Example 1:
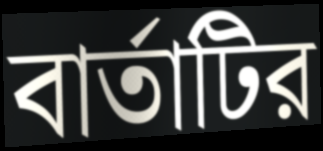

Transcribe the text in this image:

বার্তাটির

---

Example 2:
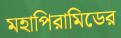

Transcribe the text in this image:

মহাপিরামিডের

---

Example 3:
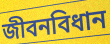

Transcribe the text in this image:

জীবনবিধান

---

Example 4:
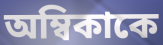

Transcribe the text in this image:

অম্বিকাকে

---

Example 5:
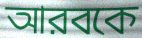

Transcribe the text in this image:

আরবকে